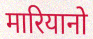
मारियानो